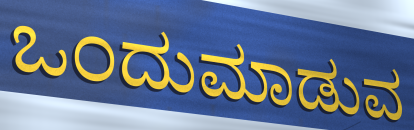
ಒಂದುಮಾಡುವ